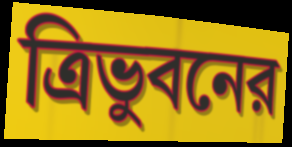
ত্রিভুবনের